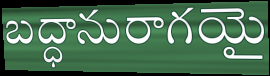
బద్ధానురాగయై